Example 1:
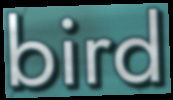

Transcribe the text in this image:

bird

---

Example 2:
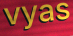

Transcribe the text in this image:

vyas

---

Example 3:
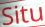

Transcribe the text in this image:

Situ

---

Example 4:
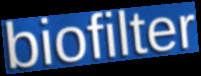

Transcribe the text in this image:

biofilter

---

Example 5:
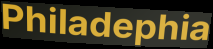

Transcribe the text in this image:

Philadephia